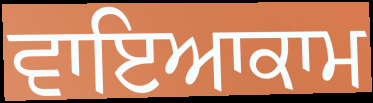
ਵਾਇਆਕਾਮ